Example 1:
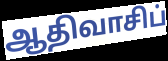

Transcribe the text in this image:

ஆதிவாசிப்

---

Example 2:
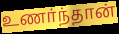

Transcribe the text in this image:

உணர்ந்தான்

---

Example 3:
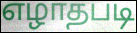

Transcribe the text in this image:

எழாதபடி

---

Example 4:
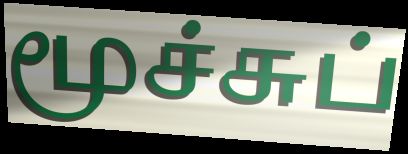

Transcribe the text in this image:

மூச்சுப்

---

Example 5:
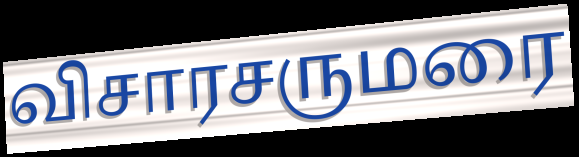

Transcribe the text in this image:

விசாரசருமரை